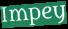
Impey